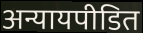
अन्यायपीडित